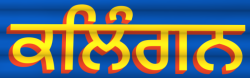
ਕਲਿੰਗਨ